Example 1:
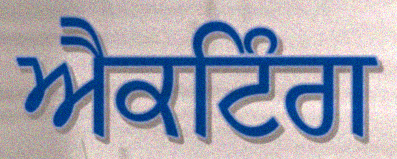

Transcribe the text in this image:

ਐਕਟਿੰਗ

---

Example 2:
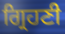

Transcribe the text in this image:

ਗ੍ਰਿਹਣੀ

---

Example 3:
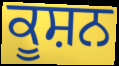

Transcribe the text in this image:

ਕੂਸ਼ਨ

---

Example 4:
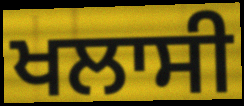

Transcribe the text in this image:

ਖਲਾਸੀ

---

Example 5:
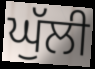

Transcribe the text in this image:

ਘੁੱਲੀ